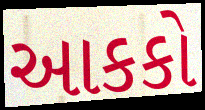
આકકો